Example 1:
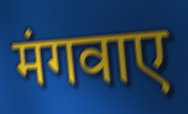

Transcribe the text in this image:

मंगवाए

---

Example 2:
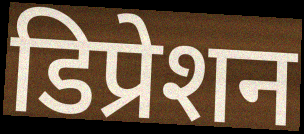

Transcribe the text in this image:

डिप्रेशन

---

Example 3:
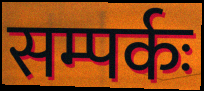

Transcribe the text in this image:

सम्पर्कः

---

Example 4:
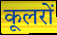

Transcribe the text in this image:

कूलरों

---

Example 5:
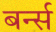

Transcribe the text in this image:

बर्न्स